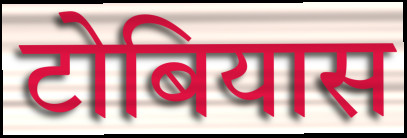
टोबियास